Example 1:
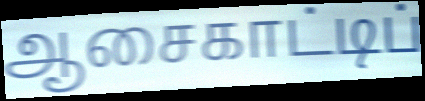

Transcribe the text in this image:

ஆசைகாட்டிப்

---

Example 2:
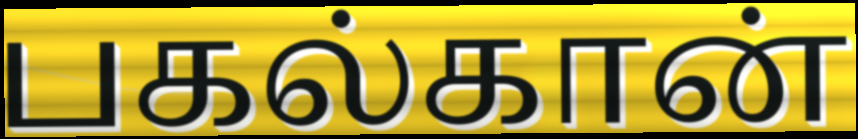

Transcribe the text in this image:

பகல்கான்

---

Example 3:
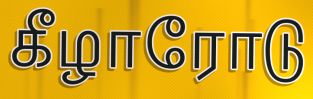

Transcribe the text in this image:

கீழாரோடு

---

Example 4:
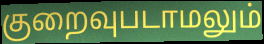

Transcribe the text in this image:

குறைவுபடாமலும்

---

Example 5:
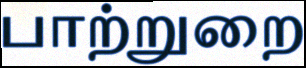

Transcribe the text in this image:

பாற்றுறை